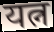
यत्न